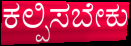
ಕಲ್ಪಿಸಬೇಕು